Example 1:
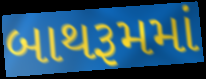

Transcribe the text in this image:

બાથરૂમમાં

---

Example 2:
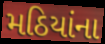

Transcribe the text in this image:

મઠિયાંના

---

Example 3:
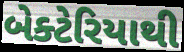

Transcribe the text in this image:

બેક્ટેરિયાથી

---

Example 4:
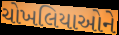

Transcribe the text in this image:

ચોખલિયાઓને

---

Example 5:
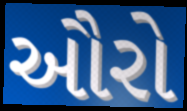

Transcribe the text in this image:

ઔરો